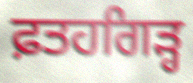
ਫ਼ਤਹਗਿੜ੍ਹ